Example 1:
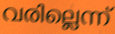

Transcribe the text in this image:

വരില്ലെന്ന്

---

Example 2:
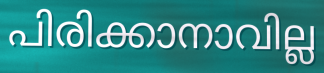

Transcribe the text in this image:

പിരിക്കാനാവില്ല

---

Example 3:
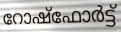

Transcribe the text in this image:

റോഷ്ഫോർട്ട്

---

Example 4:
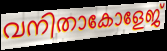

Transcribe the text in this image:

വനിതാകോളേജ്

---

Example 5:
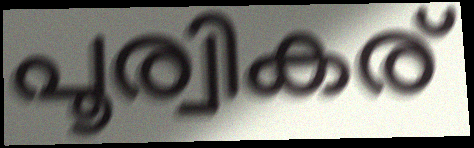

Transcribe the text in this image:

പൂര്വികര്